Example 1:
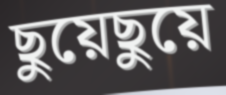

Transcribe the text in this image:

ছুয়েছুয়ে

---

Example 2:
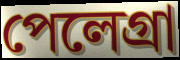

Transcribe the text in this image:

পেলেগ্রা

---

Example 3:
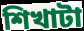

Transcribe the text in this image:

শিখাটা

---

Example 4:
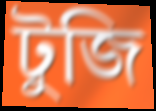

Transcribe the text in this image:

টুজি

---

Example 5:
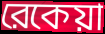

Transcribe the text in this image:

রেকেয়া